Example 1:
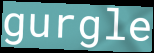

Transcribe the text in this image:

gurgle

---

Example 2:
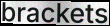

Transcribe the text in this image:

brackets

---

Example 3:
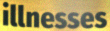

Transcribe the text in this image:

illnesses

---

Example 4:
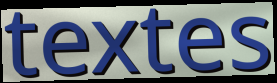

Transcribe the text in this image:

textes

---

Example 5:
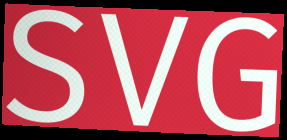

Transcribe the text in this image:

SVG